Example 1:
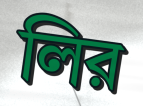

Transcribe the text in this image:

লির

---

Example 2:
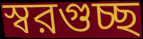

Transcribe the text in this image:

স্বরগুচ্ছ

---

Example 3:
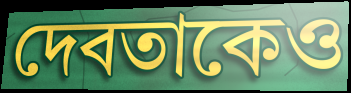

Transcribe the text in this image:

দেবতাকেও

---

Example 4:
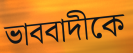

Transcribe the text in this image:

ভাববাদীকে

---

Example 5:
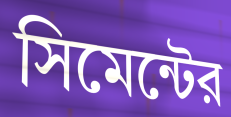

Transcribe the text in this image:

সিমেন্টের